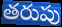
తరుపు